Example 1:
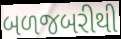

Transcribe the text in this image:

બળજબરીથી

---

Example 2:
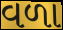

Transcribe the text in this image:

વળા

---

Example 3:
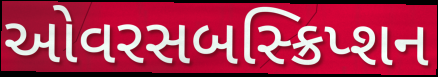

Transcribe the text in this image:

ઓવરસબસ્ક્રિપ્શન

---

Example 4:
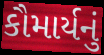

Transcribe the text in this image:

કૌમાર્યનું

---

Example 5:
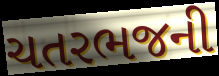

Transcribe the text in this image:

ચતરભજની